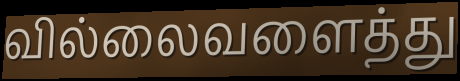
வில்லைவளைத்து